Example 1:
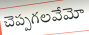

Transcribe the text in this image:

చెప్పగలవేమో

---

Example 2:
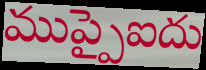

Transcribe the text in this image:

ముప్పైఐదు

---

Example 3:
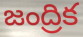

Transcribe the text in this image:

జంద్రిక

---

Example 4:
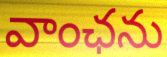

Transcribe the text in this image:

వాంఛను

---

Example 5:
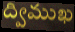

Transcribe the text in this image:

ద్విముఖ